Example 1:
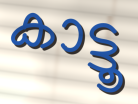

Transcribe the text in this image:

കാട്ടൂ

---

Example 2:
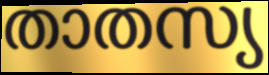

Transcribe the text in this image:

താതസ്യ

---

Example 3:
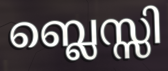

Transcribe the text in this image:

ബ്ലെസ്സി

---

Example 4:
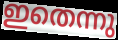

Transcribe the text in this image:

ഇതെന്നു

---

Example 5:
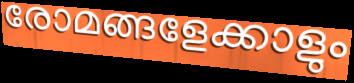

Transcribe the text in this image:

രോമങ്ങളേക്കാളും